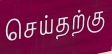
செய்தற்கு